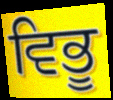
ਵਿਭੂ